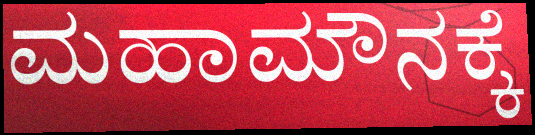
ಮಹಾಮೌನಕ್ಕೆ